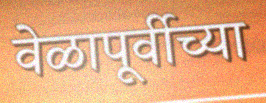
वेळापूर्वीच्या